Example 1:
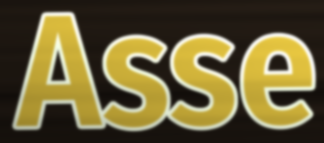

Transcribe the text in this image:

Asse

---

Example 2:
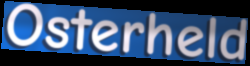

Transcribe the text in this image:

Osterheld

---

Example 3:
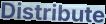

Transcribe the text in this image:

Distribute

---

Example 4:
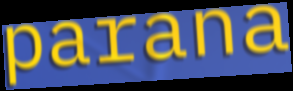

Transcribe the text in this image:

parana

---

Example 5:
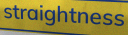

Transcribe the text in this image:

straightness